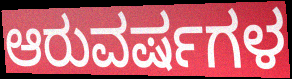
ಆರುವರ್ಷಗಳ